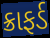
ક્રાફર્ડ